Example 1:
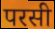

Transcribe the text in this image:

परसी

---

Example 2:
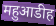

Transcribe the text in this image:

महुआडीह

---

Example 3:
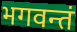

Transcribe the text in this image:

भगवन्तं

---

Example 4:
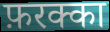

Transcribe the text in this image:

फ़रक्का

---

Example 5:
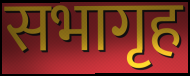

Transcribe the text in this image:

सभागृह